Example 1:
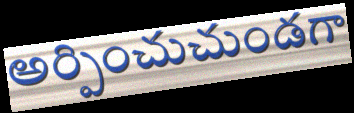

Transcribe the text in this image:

అర్పించుచుండగా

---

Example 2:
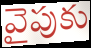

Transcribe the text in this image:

వైపుకు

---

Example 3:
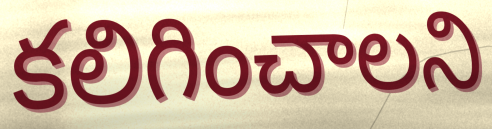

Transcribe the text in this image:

కలిగించాలని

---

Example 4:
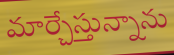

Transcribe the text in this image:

మార్చేస్తున్నాను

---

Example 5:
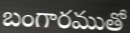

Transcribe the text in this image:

బంగారముతో